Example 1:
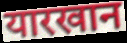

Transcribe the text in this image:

यारखान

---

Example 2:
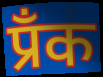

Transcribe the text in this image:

प्रँक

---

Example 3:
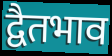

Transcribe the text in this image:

द्वैतभाव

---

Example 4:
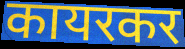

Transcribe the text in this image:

कायरकर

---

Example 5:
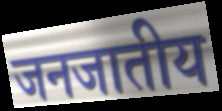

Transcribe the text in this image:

जनजातीय